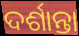
ଦର୍ଶାନ୍ତା